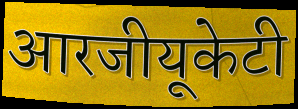
आरजीयूकेटी